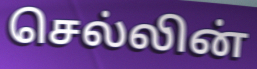
செல்லின்